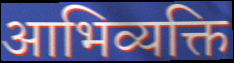
आभिव्यक्ति